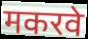
मकरवे